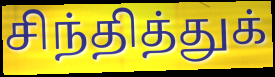
சிந்தித்துக்